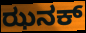
ಝನಕ್